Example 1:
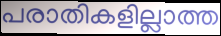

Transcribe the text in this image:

പരാതികളില്ലാത്ത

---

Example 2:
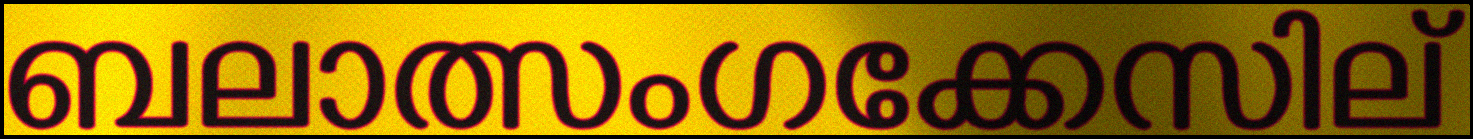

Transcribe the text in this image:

ബലാത്സംഗക്കേസില്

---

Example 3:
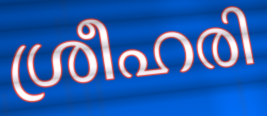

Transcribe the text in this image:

ശ്രീഹരി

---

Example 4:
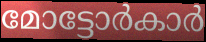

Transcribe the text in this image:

മോട്ടോർകാർ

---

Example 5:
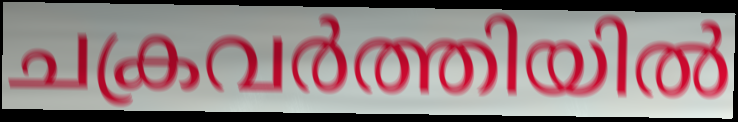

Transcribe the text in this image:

ചക്രവർത്തിയിൽ